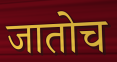
जातोच